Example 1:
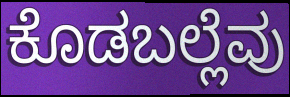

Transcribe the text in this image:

ಕೊಡಬಲ್ಲೆವು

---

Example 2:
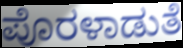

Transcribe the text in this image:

ಪೊರಳಾಡುತೆ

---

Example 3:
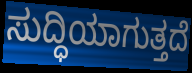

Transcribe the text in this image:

ಸುದ್ಧಿಯಾಗುತ್ತದೆ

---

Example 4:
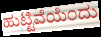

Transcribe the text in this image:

ಹುಟ್ಟಿವೆಯೆಂದು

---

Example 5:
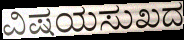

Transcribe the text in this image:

ವಿಷಯಸುಖದ